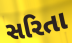
સરિતા